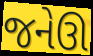
જનેઊ